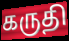
கருதி